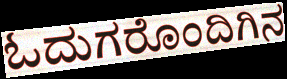
ಓದುಗರೊಂದಿಗಿನ